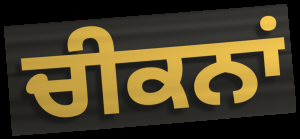
ਚੀਕਨਾਂ